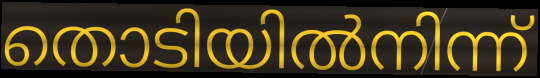
തൊടിയിൽനിന്ന്